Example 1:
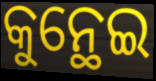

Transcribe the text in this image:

କୁନ୍ଥେଇ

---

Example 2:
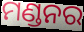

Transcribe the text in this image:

ମଣ୍ଡନର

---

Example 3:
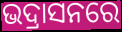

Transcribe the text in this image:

ଭଦ୍ରାସନରେ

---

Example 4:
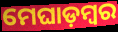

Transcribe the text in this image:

ମେଘାଡ଼ମ୍ବର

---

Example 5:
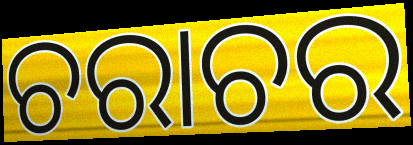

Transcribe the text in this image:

ଚରାଚର